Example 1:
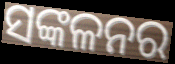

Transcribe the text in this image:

ସଙ୍କଳନର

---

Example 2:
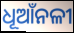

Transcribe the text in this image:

ଧୂଆଁନଳୀ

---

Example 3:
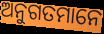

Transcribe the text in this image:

ଅନୁଗତମାନେ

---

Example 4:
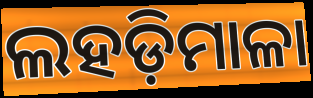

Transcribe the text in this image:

ଲହଡ଼ିମାଳା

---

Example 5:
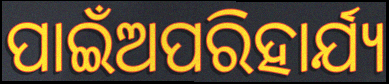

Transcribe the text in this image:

ପାଇଁଅପରିହାର୍ଯ୍ୟ